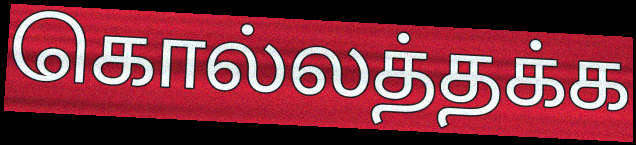
கொல்லத்தக்க